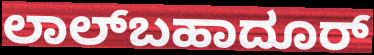
ಲಾಲ್‌ಬಹಾದೂರ್